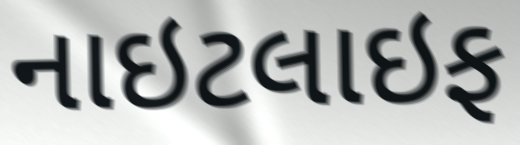
નાઇટલાઇફ